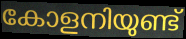
കോളനിയുണ്ട്